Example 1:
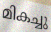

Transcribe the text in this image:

മികച്ചു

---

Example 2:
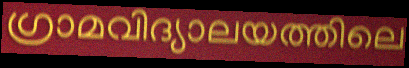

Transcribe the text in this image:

ഗ്രാമവിദ്യാലയത്തിലെ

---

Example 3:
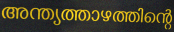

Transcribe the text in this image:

അന്ത്യത്താഴത്തിന്റെ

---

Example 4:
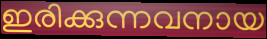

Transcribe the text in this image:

ഇരിക്കുന്നവനായ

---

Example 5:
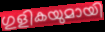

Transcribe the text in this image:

ഗുളികയുമായി